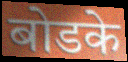
बोडके